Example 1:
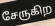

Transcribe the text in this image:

சேருகிற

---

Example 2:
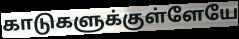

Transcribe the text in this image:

காடுகளுக்குள்ளேயே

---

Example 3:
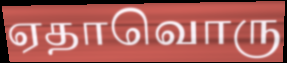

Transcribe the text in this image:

ஏதாவொரு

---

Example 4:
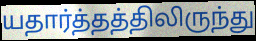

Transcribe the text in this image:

யதார்த்தத்திலிருந்து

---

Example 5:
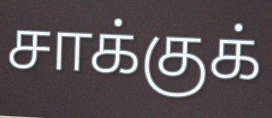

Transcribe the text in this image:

சாக்குக்